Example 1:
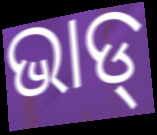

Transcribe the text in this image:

ଭାଡ୍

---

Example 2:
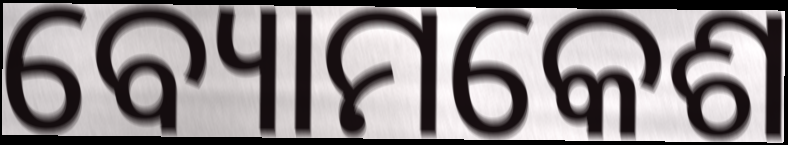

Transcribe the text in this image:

ବ୍ୟୋମକେଶ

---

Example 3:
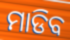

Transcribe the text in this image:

ମାଡିବ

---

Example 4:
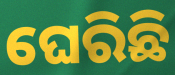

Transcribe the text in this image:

ଘେରିଛି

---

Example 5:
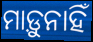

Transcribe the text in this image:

ମାଡ଼ୁନାହିଁ